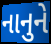
નાનુને